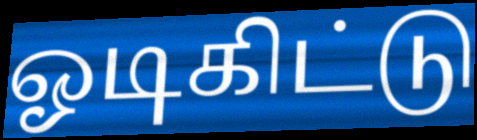
ஓடிகிட்டு